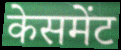
केसमेंट